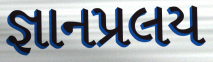
જ્ઞાનપ્રલય